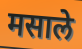
मसाले